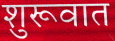
शुरूवात